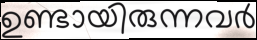
ഉണ്ടായിരുന്നവർ